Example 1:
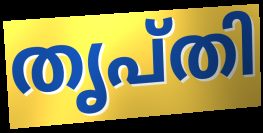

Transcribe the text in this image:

തൃപ്തി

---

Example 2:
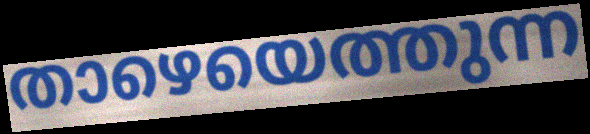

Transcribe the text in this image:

താഴെയെത്തുന്ന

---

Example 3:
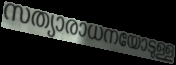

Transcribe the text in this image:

സത്യാരാധനയോടുള്ള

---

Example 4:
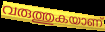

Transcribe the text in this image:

വരുത്തുകയാണ്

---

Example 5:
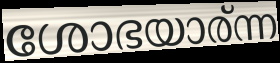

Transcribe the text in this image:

ശോഭയാര്ന്ന